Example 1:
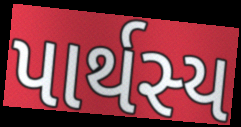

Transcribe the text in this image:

પાર્થસ્ય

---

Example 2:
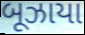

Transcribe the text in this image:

બૂઝાયા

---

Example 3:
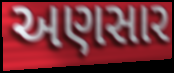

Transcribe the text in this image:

અણસાર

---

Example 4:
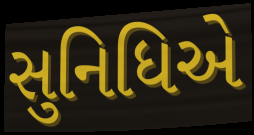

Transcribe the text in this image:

સુનિધિએ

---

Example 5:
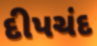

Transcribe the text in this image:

દીપચંદ